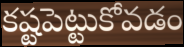
కష్టపెట్టుకోవడం